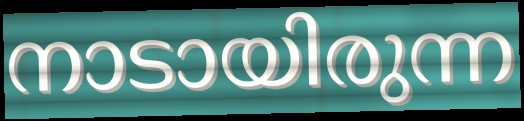
നാടായിരുന്ന